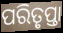
ପରିତୃପ୍ତା